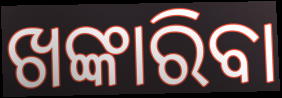
ଖଙ୍କାରିବା